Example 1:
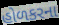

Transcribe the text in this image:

હોળકરના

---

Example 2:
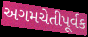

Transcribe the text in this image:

અગમચેતીપૂર્વક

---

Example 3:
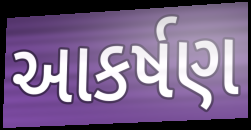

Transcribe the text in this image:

આકર્ષણ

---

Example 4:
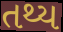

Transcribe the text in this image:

તથ્ય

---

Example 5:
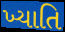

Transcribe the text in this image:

ખ્યાતિ